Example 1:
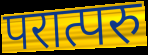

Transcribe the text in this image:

परात्परु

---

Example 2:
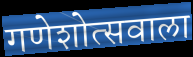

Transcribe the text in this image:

गणेशोत्सवाला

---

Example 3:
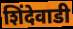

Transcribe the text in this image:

शिंदेवाडी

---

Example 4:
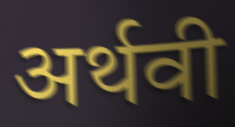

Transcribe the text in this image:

अर्थवी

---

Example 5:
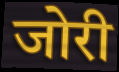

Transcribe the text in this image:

जोरी